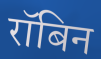
रॉबिन